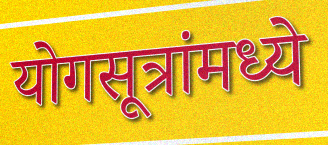
योगसूत्रांमध्ये